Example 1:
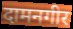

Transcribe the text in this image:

दामनगीर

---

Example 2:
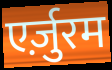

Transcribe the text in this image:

एर्ज़ुरम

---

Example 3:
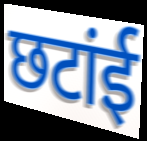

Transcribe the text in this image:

छटांई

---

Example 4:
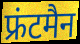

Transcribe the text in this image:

फ्रंटमैन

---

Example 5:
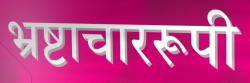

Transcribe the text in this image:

भ्रष्टाचाररूपी